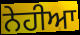
ਨੇਹੀਆ